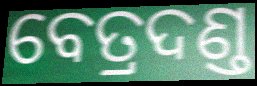
ବେତ୍ରଦଣ୍ଡ